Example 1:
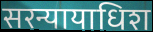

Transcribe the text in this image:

सरन्यायाधिश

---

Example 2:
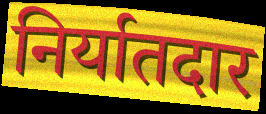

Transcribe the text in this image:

निर्यातदार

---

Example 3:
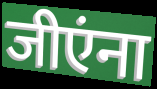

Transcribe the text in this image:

जीएंना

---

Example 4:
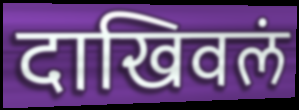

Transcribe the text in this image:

दाखिवलं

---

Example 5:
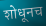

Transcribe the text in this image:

शोधूनच